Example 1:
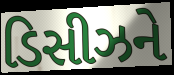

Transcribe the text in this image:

ડિસીઝને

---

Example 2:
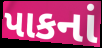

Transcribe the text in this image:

પાકનાં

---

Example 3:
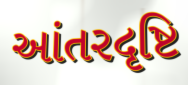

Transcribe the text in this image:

આંતરદૃષ્ટિ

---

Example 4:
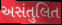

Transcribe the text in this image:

અસંતુલિત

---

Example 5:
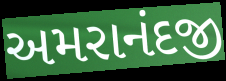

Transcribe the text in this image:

અમરાનંદજી